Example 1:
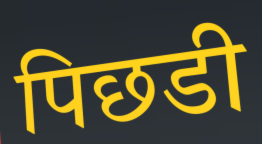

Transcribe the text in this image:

पिछडी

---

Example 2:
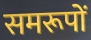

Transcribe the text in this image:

समरूपों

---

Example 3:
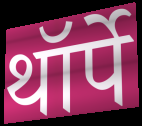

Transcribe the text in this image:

थॉर्पे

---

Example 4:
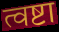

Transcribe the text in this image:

त्वष्टा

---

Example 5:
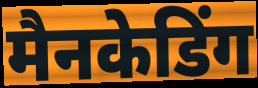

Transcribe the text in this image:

मैनकेडिंग